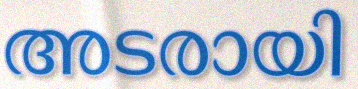
അടരായി